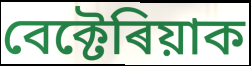
বেক্টেৰিয়াক